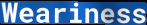
Weariness